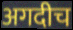
अगदीच